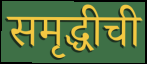
समृद्धीची